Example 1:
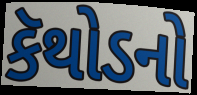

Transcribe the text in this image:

કૅથોડનો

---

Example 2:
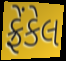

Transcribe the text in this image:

ફ્રેંકેલ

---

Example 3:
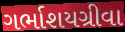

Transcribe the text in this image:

ગર્ભાશયગ્રીવા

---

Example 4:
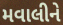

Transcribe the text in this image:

મવાલીને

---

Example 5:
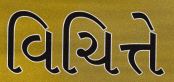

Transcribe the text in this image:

વિચિત્તે